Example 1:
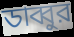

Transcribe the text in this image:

ডাব্বুর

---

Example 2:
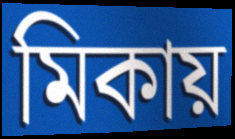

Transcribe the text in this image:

মিকায়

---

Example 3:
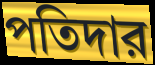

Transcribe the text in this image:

পতিদার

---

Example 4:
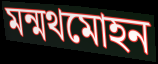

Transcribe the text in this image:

মন্মথমোহন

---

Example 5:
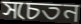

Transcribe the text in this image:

সচেতন